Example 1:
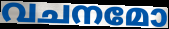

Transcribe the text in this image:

വചനമോ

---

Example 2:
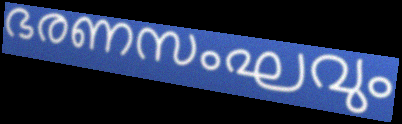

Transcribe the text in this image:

ഭരണസംഘവും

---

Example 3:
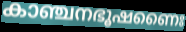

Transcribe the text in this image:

കാഞ്ചനഭൂഷണൈഃ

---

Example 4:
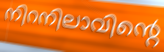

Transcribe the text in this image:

നിറനിലാവിന്റെ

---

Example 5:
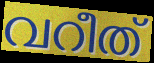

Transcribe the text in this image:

വറീത്